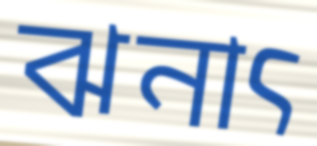
ঝনাৎ